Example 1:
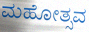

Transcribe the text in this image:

ಮಹೋತ್ಸವ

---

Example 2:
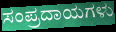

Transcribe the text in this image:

ಸಂಪ್ರದಾಯಗಳು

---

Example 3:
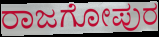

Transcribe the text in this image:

ರಾಜಗೋಪುರ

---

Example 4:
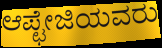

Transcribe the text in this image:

ಆಪ್ಟೇಜಿಯವರು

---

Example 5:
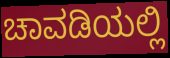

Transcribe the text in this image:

ಚಾವಡಿಯಲ್ಲಿ